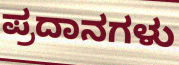
ಪ್ರದಾನಗಳು